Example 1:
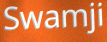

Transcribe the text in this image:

Swamji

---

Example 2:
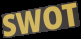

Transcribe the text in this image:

SWOT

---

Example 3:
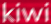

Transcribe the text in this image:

kiwi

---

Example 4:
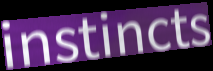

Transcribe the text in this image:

instincts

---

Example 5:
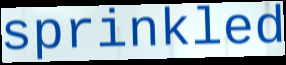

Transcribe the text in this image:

sprinkled